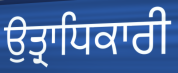
ਉਤ੍ਰਾਧਿਕਾਰੀ